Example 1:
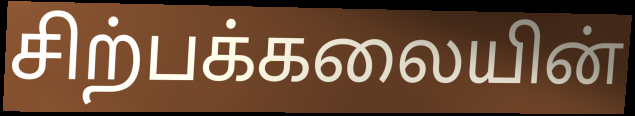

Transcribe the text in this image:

சிற்பக்கலையின்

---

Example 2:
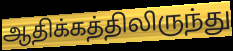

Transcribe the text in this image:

ஆதிக்கத்திலிருந்து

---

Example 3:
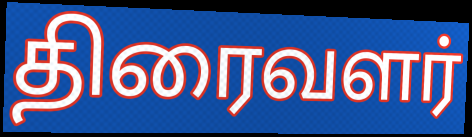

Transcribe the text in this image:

திரைவளர்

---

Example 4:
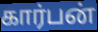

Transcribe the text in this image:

கார்பன்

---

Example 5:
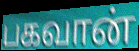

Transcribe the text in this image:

பகவான்